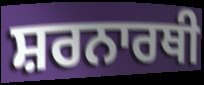
ਸ਼ਰਨਾਰਥੀ